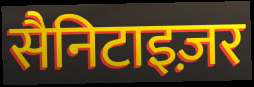
सैनिटाइज़र